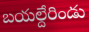
బయల్దేరిండు